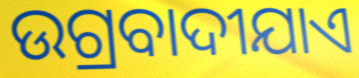
ଉଗ୍ରବାଦୀଯାଏ